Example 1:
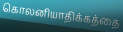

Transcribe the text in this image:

கொலனியாதிக்கத்தை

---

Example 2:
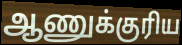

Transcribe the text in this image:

ஆணுக்குரிய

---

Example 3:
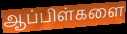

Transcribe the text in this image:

ஆப்பிள்களை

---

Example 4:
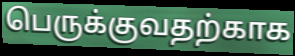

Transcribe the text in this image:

பெருக்குவதற்காக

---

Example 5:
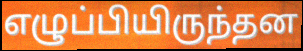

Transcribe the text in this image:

எழுப்பியிருந்தன